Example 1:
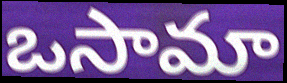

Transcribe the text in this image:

ఒసామా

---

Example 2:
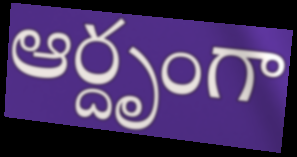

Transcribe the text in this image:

ఆర్దృంగా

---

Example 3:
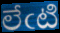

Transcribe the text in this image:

లేఁటి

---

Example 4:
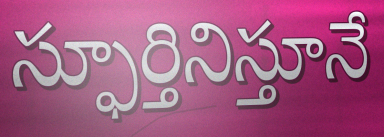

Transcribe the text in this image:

స్ఫూర్తినిస్తూనే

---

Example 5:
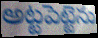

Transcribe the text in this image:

అట్టపెట్టెను